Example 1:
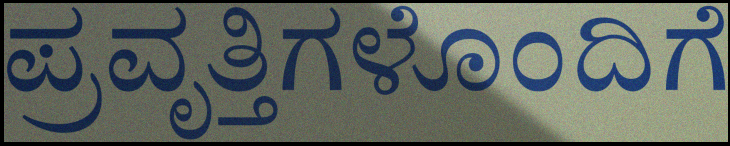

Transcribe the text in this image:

ಪ್ರವೃತ್ತಿಗಳೊಂದಿಗೆ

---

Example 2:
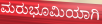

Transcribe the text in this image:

ಮರುಭೂಮಿಯಾಗಿ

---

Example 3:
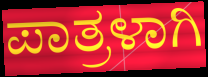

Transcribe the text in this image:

ಪಾತ್ರಳಾಗಿ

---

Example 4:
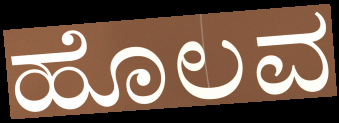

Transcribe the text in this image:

ಹೊಲವ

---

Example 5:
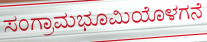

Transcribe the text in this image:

ಸಂಗ್ರಾಮಭೂಮಿಯೊಳಗನೆ